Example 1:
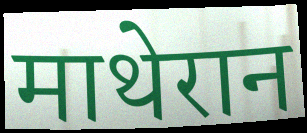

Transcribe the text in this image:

माथेरान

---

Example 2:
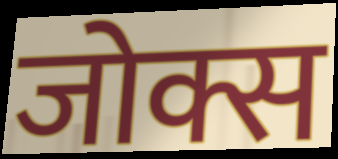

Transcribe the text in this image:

जोक्स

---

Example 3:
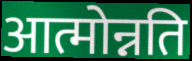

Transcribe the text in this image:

आत्मोन्नति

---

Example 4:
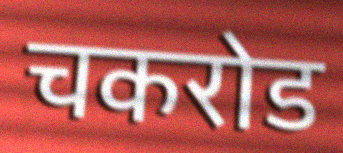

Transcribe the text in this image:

चकरोड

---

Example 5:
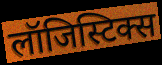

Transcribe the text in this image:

लॉजिस्टिक्स